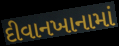
દીવાનખાનામાં